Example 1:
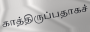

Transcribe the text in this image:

காத்திருப்பதாகச்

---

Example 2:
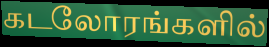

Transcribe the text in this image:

கடலோரங்களில்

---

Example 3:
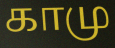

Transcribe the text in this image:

காமு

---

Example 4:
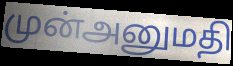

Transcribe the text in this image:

முன்அனுமதி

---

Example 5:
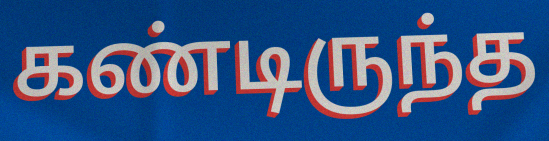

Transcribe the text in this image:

கண்டிருந்த